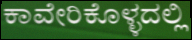
ಕಾವೇರಿಕೊಳ್ಳದಲ್ಲಿ